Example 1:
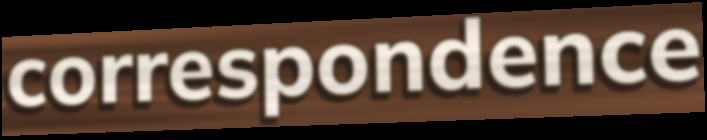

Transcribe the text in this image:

correspondence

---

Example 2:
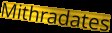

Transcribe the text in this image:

Mithradates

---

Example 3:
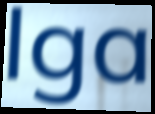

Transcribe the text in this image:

Iga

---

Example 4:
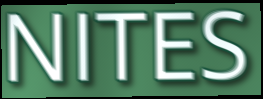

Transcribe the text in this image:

NITES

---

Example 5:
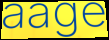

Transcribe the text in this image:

aage